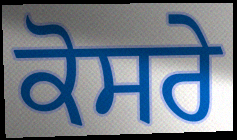
ਕੋਸਰੇ